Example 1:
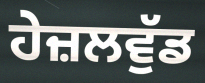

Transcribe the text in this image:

ਹੇਜ਼ਲਵੁੱਡ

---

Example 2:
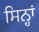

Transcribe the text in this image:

ਸਿਨ੍ਹਾਂ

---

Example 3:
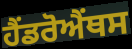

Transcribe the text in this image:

ਹੈਂਡਰੋਐਂਥਸ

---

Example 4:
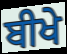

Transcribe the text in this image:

ਬੀਖੇ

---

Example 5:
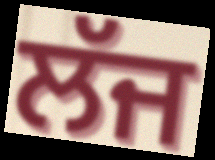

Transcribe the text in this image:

ਲੱਜ